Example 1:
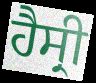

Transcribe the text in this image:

ਹੈਸ੍ਰੀ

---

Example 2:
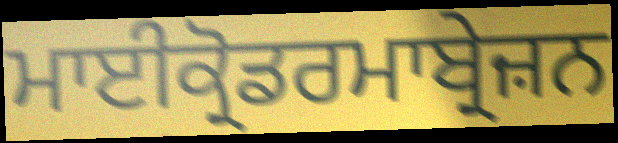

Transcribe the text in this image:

ਮਾਈਕ੍ਰੋਡਰਮਾਬ੍ਰੇਜ਼ਨ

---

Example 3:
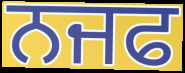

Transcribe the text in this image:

ਨਜਫ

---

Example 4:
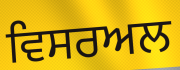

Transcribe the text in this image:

ਵਿਸਰਅਲ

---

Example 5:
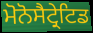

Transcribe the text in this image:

ਮੋਨੋਸੈਟ੍ਰੇਟਿਡ